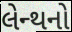
લેન્થનો